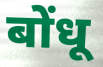
बोंधू